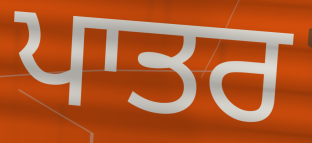
ਪਾਤਰ